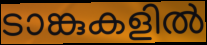
ടാങ്കുകളിൽ